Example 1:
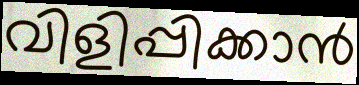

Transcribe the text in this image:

വിളിപ്പിക്കാൻ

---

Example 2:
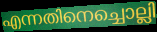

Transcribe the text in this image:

എന്നതിനെച്ചൊല്ലി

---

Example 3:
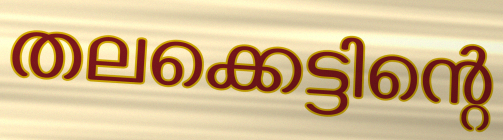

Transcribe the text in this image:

തലക്കെട്ടിന്റെ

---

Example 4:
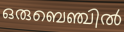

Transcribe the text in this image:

ഒരുബെഞ്ചിൽ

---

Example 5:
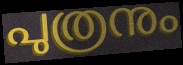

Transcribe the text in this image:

പുത്രനും